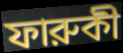
ফাৰুকী